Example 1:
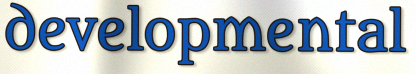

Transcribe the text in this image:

developmental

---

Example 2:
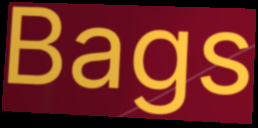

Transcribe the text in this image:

Bags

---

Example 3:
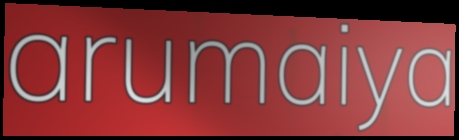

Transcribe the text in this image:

arumaiya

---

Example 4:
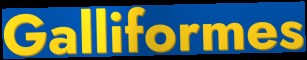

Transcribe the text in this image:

Galliformes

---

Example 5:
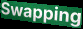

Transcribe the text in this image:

Swapping